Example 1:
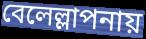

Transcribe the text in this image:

বেলেল্লাপনায়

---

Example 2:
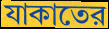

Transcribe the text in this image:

যাকাতের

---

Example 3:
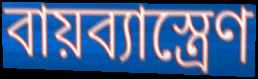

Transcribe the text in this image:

বায়ব্যাস্ত্রেণ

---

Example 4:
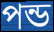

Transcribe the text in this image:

পন্ড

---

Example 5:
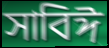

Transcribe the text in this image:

সাবিঈ